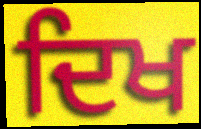
ਦਿਖ